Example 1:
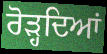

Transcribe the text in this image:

ਰੋੜ੍ਹਦਿਆਂ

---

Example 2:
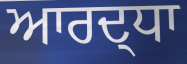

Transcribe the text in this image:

ਆਰਦ੍ਧਾ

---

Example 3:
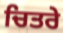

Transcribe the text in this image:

ਚਿਤਰੇ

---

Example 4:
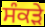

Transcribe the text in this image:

ਸੰਕੜੇ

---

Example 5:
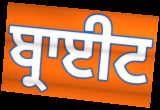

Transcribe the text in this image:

ਬ੍ਰਾਈਟ